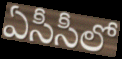
ఏసీసీలో